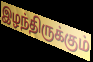
இழந்திருக்கும்